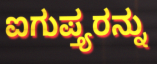
ಐಗುಪ್ತ್ಯರನ್ನು